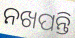
ନଖପନ୍ତି